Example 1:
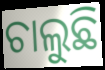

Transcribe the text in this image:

ଚାଲୁଛି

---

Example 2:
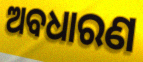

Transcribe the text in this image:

ଅବଧାରଣ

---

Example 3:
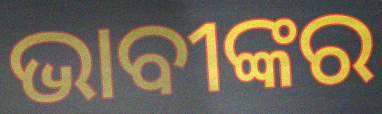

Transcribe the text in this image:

ଭାବୀଙ୍କର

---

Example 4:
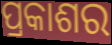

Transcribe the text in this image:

ପ୍ରକାଶର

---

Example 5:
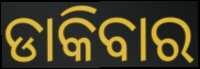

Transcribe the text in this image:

ଡାକିବାର